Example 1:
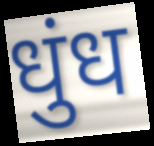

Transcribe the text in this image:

धुंध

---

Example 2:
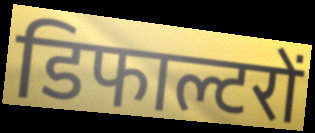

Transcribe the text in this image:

डिफाल्टरों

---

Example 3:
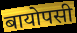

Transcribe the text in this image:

बायोपसी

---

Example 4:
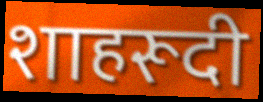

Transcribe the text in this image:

शाहरूदी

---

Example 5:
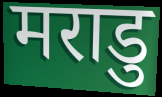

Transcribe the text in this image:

मराडु